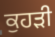
ਕੁਹੜੀ